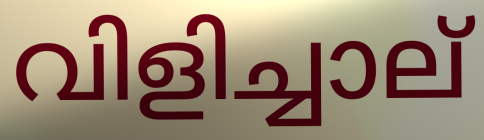
വിളിച്ചാല്